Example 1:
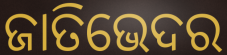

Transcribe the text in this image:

ଜାତିଭେଦର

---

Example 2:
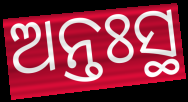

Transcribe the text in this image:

ଅନ୍ତଃସ୍ଥ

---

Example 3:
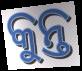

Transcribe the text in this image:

କୁନ୍ତ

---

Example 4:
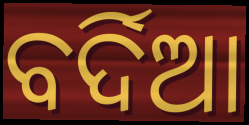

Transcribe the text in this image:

ବର୍ଦିଆ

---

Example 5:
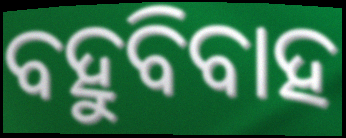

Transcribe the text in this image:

ବହୁବିବାହ